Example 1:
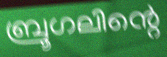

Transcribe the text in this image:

ബ്രൂഗലിന്റെ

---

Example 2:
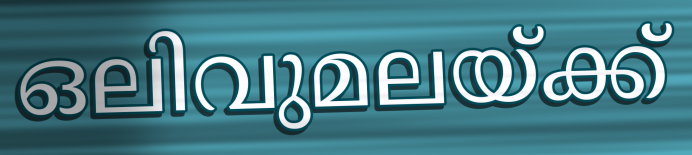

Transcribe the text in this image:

ഒലിവുമലയ്ക്ക്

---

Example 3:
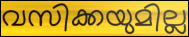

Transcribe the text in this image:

വസിക്കയുമില്ല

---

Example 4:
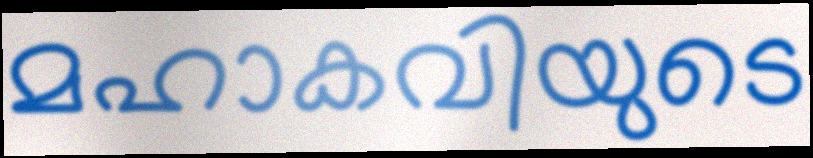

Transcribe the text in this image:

മഹാകവിയുടെ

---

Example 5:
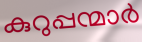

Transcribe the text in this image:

കുറുപ്പന്മാർ